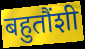
बहुतौंशी